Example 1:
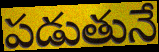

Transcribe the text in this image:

పడుతునే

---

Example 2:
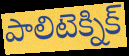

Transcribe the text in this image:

పాలిటెక్నిక్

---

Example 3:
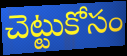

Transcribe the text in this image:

చెట్టుకోసం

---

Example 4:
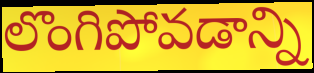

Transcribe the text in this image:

లొంగిపోవడాన్ని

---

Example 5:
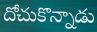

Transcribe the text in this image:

దోచుకొన్నాడు